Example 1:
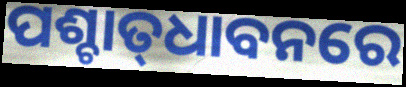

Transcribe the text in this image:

ପଶ୍ଚାତ୍‍ଧାବନରେ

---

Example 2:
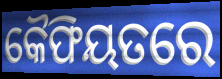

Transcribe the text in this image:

କୈଫିୟତରେ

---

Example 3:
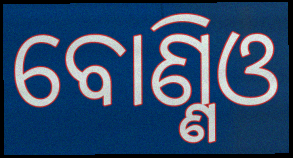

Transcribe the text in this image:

ବୋଣ୍ଣିଓ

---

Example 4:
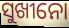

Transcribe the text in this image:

ସୁଖୀନୋ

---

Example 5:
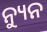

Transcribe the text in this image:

ନ୍ୟୁନ